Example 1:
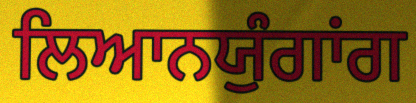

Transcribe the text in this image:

ਲਿਆਨਯੁੰਗਾਂਗ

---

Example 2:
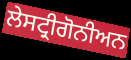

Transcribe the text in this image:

ਲੇਸਟ੍ਰੀਗੋਨੀਅਨ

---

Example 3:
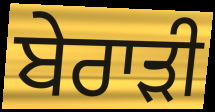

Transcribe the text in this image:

ਬੇਰਾੜੀ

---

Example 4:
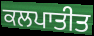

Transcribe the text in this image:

ਕਲਪਾਤੀਤ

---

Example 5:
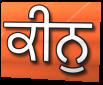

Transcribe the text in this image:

ਕੀਨੁ